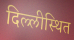
दिल्लीस्थित